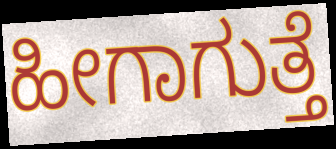
ಹೀಗಾಗುತ್ತೆ